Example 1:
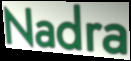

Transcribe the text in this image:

Nadra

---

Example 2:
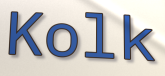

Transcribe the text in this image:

Kolk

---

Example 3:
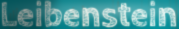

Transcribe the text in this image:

Leibenstein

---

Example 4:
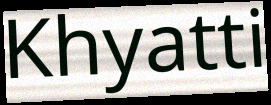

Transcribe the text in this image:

Khyatti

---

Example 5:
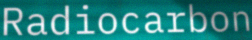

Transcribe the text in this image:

Radiocarbon